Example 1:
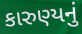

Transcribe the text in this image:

કારુણ્યનું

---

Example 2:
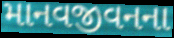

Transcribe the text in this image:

માનવજીવનના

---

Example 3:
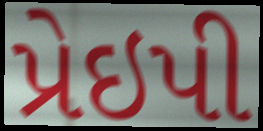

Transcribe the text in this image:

પ્રેઇપી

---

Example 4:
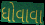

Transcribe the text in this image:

ધોવાવા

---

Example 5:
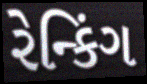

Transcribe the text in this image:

રેન્કિંગ